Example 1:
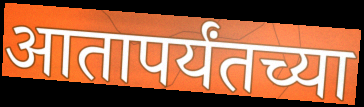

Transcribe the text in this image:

आतापर्यंतच्या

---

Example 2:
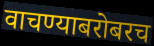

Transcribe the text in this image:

वाचण्याबरोबरच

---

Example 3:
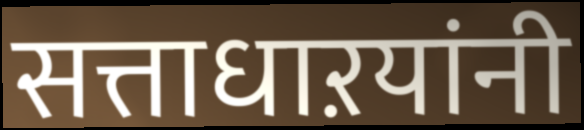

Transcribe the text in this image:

सत्ताधाऱयांनी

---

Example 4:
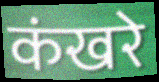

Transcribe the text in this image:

कंखरे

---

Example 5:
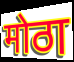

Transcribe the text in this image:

मोठा